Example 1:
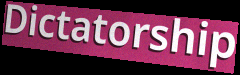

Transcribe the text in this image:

Dictatorship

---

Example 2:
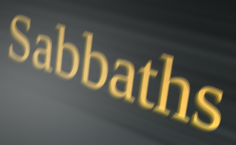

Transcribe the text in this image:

Sabbaths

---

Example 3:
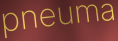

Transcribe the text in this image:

pneuma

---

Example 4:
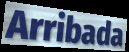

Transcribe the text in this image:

Arribada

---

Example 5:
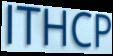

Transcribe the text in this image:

ITHCP